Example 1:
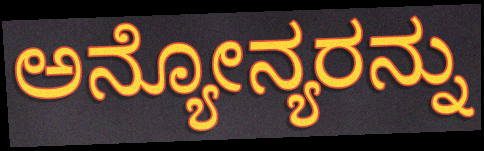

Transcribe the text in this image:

ಅನ್ಯೋನ್ಯರನ್ನು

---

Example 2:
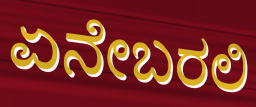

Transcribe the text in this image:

ಏನೇಬರಲಿ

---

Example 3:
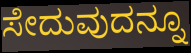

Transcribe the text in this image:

ಸೇದುವುದನ್ನೂ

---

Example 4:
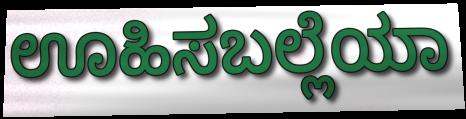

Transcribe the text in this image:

ಊಹಿಸಬಲ್ಲೆಯಾ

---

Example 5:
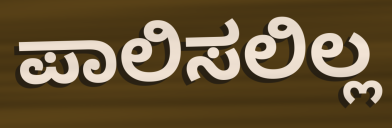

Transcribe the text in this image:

ಪಾಲಿಸಲಿಲ್ಲ